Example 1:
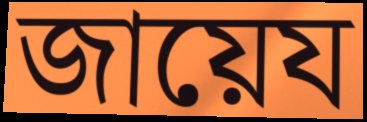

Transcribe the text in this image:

জায়েয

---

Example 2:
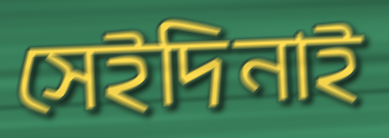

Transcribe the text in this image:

সেইদিনাই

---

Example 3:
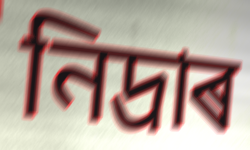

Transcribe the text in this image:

নিদ্ৰাৰ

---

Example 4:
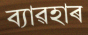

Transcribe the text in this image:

ব্যাৱহাৰ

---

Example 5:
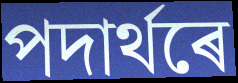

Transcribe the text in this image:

পদাৰ্থৰে